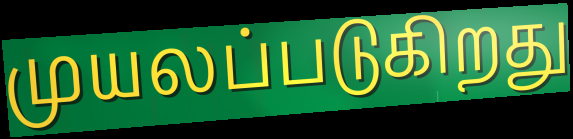
முயலப்படுகிறது